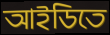
আইডিতে